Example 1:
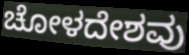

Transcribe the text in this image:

ಚೋಳದೇಶವು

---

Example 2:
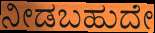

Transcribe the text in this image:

ನೀಡಬಹುದೇ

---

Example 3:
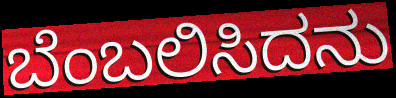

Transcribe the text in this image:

ಬೆಂಬಲಿಸಿದನು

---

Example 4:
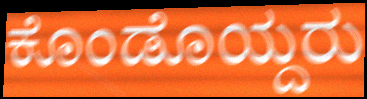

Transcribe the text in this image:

ಕೊಂಡೊಯ್ದರು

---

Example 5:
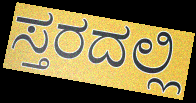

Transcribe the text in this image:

ಸ್ತರದಲ್ಲಿ